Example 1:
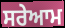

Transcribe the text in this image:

ਸਰੇਆਮ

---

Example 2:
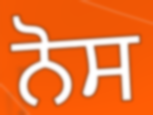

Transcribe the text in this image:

ਨੋਸ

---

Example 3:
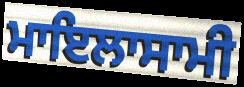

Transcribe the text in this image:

ਮਾਇਲਾਸਾਮੀ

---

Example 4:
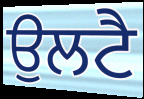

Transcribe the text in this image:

ਉਲਟੈ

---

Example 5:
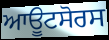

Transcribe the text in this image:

ਆਊਟਸੋਰਸ